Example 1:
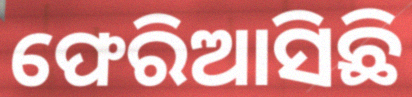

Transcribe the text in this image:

ଫେରିଆସିଛି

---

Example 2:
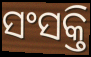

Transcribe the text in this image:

ସଂସକ୍ତି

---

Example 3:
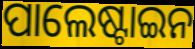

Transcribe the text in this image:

ପାଲେଷ୍ଟାଇନ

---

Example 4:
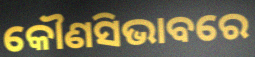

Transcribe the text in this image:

କୌଣସିଭାବରେ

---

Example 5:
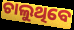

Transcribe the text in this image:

ଚାଲୁଥିବେ